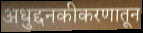
अधुद्दनकीकरणातून